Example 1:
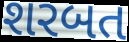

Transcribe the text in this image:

શરબત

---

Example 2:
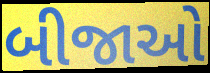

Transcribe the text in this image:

બીજાઓ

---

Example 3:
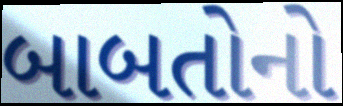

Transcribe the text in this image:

બાબતોનો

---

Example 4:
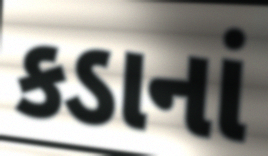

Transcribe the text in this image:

કડાનાં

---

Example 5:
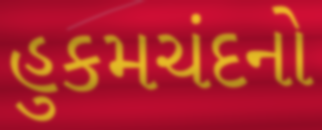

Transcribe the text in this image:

હુકમચંદનો